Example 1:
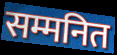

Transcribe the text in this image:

सम्मनित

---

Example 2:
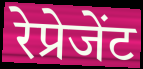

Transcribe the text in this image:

रेप्रेजेंट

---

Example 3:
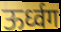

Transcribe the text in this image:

ऊर्ध्वग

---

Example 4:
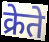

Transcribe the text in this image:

क्रेते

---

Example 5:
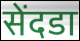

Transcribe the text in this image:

सेंदडा